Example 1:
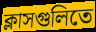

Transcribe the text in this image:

ক্লাসগুলিতে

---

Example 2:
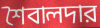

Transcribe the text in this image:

শৈবালদার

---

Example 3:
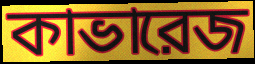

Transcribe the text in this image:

কাভারেজ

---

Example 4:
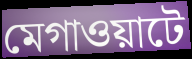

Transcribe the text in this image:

মেগাওয়াটে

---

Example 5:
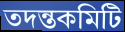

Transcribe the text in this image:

তদন্তকমিটি